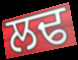
ਲਢ